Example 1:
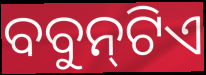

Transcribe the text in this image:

ବବୁନ୍‍ଟିଏ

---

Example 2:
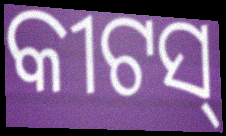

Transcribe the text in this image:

କୀଟସ୍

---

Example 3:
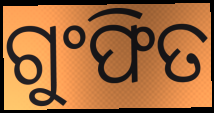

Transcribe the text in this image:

ଗୁଂଫିତ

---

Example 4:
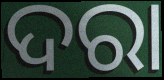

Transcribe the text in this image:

ଦରା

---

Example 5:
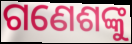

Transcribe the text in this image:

ଗଣେଶଙ୍କୁ